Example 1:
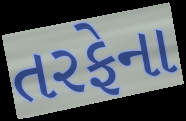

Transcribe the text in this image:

તરફેના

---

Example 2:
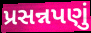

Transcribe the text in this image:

પ્રસન્નપણું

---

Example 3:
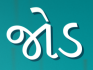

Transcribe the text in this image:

જોડ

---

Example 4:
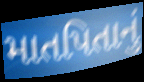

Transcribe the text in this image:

માતપિતાનું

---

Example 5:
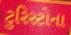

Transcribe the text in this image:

ટુરિસ્ટોના